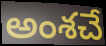
అంశచే